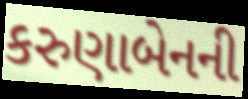
કરુણાબેનની